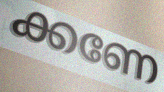
ക്കണേ